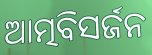
ଆତ୍ମବିସର୍ଜନ